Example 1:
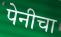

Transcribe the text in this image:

पेनीचा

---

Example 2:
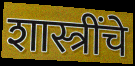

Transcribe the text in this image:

शास्त्रींचे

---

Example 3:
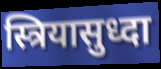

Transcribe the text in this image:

स्त्रियासुध्दा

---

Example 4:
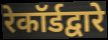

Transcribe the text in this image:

रेकॉर्डद्वारे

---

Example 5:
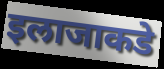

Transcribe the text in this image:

इलाजाकडे